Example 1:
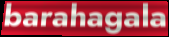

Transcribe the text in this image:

barahagala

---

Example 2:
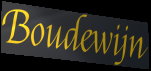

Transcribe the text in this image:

Boudewijn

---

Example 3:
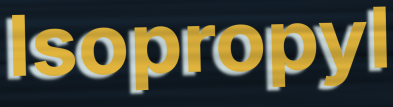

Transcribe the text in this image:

Isopropyl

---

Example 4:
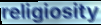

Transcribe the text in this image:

religiosity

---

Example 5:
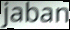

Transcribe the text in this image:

jaban